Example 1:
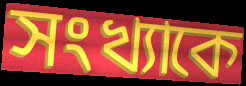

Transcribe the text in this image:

সংখ্যাকে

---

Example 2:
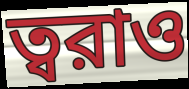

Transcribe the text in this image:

ত্বরাও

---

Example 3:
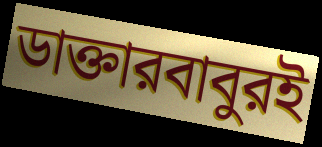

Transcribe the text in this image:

ডাক্তারবাবুরই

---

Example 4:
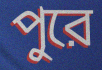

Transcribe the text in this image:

পুরে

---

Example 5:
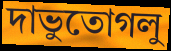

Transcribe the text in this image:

দাভুতোগলু